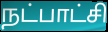
நட்பாட்சி